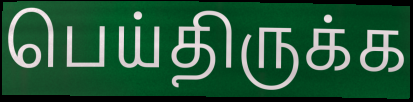
பெய்திருக்க